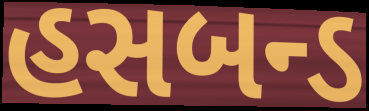
હસબન્ડ